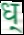
ध्